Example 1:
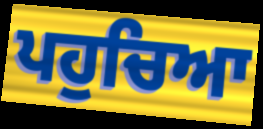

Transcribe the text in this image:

ਪਹੁਚਿਆ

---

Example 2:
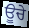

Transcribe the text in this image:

ਊਚੇ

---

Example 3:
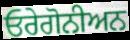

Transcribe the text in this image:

ਓਰੇਗੋਨੀਅਨ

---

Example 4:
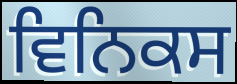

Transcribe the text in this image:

ਵਿਨਿਕਸ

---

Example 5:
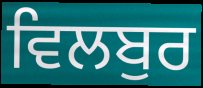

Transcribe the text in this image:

ਵਿਲਬੁਰ